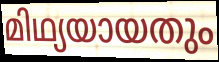
മിഥ്യയായതും